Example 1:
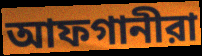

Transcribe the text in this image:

আফগানীরা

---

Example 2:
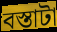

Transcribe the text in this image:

বস্তাটা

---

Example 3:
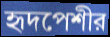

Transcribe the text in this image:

হৃদপেশীর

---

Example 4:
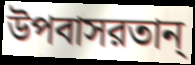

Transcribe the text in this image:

উপবাসরতান্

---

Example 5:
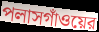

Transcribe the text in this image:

পলাসগাঁওয়ের